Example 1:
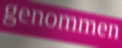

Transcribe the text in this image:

genommen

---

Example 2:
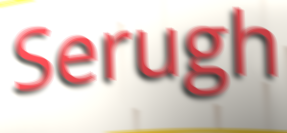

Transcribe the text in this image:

Serugh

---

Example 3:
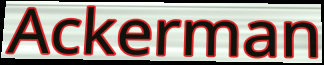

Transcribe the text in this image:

Ackerman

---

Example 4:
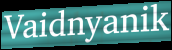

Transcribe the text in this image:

Vaidnyanik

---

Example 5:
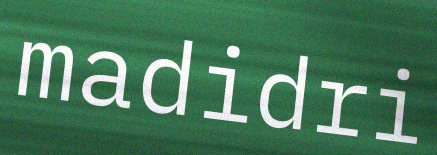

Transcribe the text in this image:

madidri